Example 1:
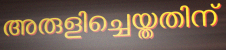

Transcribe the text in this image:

അരുളിച്ചെയ്തതിന്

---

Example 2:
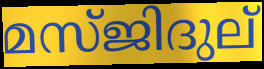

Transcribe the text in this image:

മസ്ജിദുല്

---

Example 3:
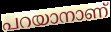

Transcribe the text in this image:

പറയാനാണ്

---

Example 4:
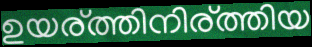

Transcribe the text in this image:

ഉയര്ത്തിനിര്ത്തിയ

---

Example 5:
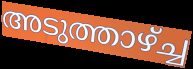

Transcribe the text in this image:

അടുത്താഴ്ച്ച